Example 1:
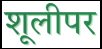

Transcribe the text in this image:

शूलीपर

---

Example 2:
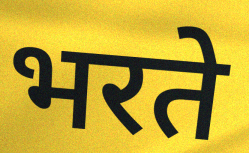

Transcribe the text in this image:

भरते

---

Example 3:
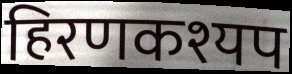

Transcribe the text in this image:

हिरणकश्यप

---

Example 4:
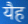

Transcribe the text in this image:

यैह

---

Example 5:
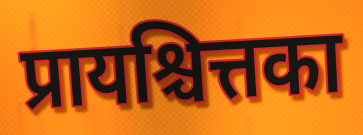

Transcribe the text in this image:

प्रायश्चित्तका